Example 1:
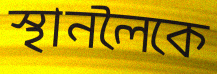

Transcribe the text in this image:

স্থানলৈকে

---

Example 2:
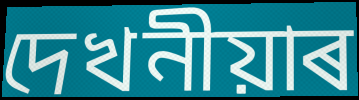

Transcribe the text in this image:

দেখনীয়াৰ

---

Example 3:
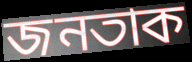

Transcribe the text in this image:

জনতাক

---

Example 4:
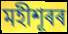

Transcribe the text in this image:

মহীশূৰৰ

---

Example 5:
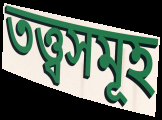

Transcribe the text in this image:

তত্ত্বসমূহ